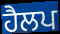
ਹੈਲਪ